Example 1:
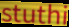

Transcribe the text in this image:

stuthi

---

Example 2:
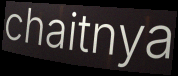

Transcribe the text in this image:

chaitnya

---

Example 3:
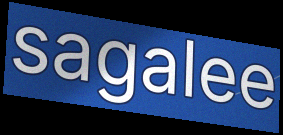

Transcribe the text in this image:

sagalee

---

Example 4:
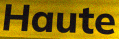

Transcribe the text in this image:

Haute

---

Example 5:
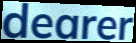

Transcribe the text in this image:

dearer